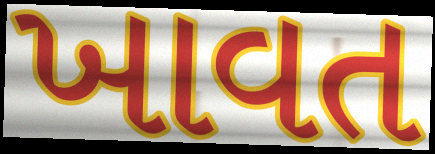
ખાવત